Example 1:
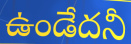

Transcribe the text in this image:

ఉండేదనీ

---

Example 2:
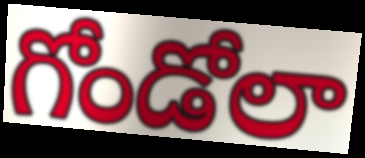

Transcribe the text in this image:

గోండోలా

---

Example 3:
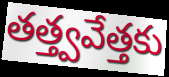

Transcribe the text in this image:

తత్త్వవేత్తకు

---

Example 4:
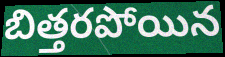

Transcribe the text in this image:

బిత్తరపోయిన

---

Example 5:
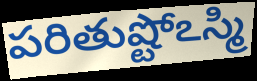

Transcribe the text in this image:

పరితుష్టోఽస్మి